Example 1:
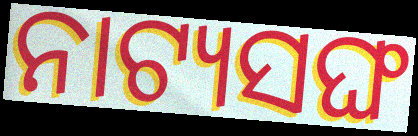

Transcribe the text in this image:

ନାଟ୍ୟସଙ୍ଘ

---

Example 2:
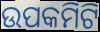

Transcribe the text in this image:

ଉପକମିଟି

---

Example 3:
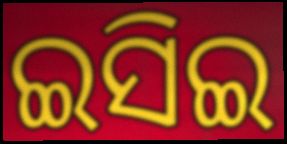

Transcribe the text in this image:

ଇସିଇ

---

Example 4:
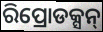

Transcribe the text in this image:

ରିପ୍ରୋଡକ୍ସନ୍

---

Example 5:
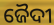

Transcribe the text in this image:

ଜୈଦୀ